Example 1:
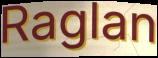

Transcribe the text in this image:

Raglan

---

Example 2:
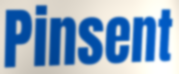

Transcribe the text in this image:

Pinsent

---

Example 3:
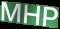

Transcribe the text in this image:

MHP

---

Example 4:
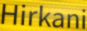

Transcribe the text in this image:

Hirkani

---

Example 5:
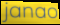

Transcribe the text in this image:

janao